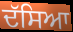
ਦੱਸਿਆ